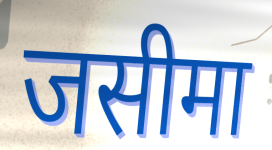
जसीमा